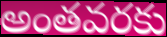
అంతవరకు